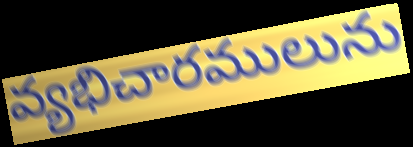
వ్యభిచారములును